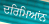
ਦਰਿਮਿਆਂਨ